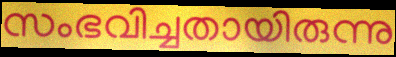
സംഭവിച്ചതായിരുന്നു